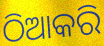
ଠିଆକରି